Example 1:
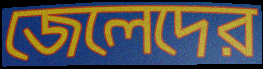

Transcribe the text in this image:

জেলেদের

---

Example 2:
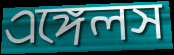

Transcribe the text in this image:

এঙ্গেলস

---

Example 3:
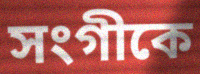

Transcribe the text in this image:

সংগীকে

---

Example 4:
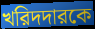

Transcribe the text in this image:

খরিদদারকে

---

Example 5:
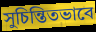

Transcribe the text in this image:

সুচিন্তিতভাবে